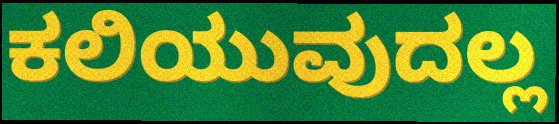
ಕಲಿಯುವುದಲ್ಲ